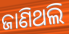
ଜାଣିଥଲି